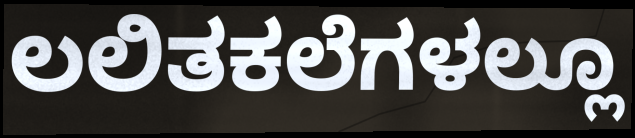
ಲಲಿತಕಲೆಗಳಲ್ಲೂ